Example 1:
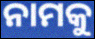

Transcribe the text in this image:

ନାମକୁ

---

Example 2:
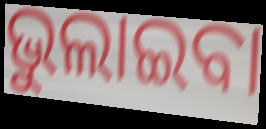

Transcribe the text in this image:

ଭୁଲାଇବା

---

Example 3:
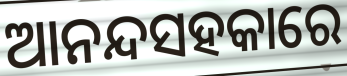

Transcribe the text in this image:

ଆନନ୍ଦସହକାରେ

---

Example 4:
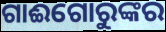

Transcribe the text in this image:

ଗାଈଗୋରୁଙ୍କର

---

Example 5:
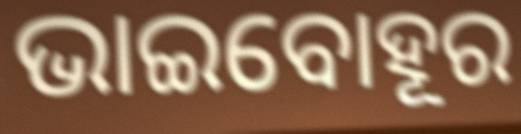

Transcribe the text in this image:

ଭାଇବୋହୂର